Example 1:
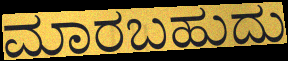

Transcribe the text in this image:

ಮಾರಬಹುದು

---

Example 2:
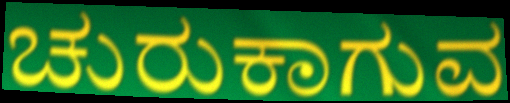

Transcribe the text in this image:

ಚುರುಕಾಗುವ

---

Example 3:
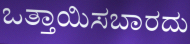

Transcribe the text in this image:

ಒತ್ತಾಯಿಸಬಾರದು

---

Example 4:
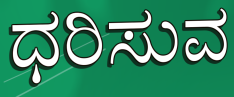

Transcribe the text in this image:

ಧರಿಸುವ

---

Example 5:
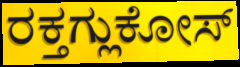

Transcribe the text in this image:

ರಕ್ತಗ್ಲುಕೋಸ್